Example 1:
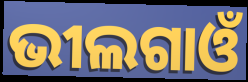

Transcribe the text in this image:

ଭୀଲଗାଓଁ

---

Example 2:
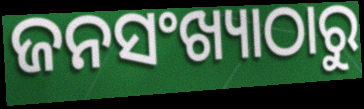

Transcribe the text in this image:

ଜନସଂଖ୍ୟାଠାରୁ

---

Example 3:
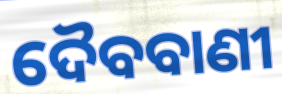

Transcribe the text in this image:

ଦୈବବାଣୀ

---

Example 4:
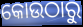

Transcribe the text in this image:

କୋଉଠାରୁ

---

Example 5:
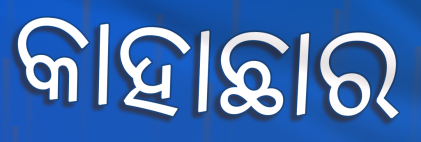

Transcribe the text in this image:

କାହାଛାର